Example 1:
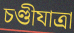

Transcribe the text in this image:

চণ্ডীযাত্রা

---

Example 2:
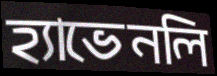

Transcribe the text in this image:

হ্যাভেনলি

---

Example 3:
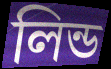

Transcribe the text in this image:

লিন্ড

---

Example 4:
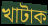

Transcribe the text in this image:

খাটাক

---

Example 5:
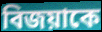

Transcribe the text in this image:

বিজয়াকে